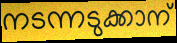
നടന്നടുക്കാന്